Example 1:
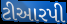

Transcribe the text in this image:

ટીઆરપી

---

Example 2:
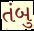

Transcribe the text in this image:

તંબુ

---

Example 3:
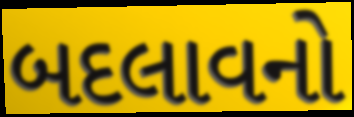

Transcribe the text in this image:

બદલાવનો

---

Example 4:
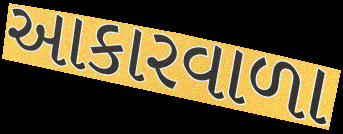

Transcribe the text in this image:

આકારવાળા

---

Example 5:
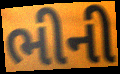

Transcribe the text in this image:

ભીની